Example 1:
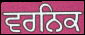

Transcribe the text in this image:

ਵਰਨਿਕ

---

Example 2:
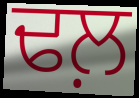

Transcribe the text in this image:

ਢਲ਼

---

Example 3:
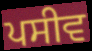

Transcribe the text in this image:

ਪਸੀਵ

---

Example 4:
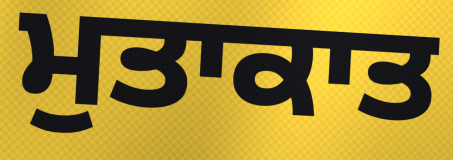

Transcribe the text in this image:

ਮੁਤਾਕਾਤ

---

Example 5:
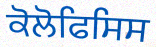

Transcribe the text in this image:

ਕੋਲੋਫਿਸਿਸ